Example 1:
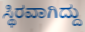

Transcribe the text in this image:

ಸ್ಥಿರವಾಗಿದ್ದು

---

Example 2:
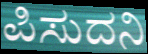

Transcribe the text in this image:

ಪಿಸುದನಿ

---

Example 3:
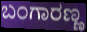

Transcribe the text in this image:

ಬಂಗಾರಣ್ಣ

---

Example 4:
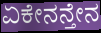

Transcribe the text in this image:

ಏಕೇನನ್ತೇನ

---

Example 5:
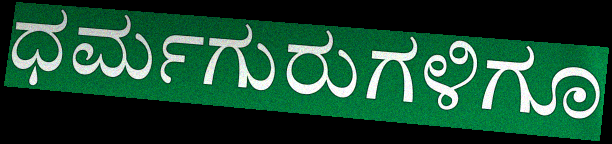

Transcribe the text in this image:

ಧರ್ಮಗುರುಗಳಿಗೂ